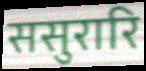
ससुरारि